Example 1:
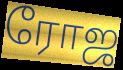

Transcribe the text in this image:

ரோஜ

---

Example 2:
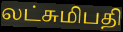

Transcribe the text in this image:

லட்சுமிபதி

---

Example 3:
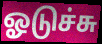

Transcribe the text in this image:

ஓடுச்சு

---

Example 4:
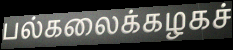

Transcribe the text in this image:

பல்கலைக்கழகச்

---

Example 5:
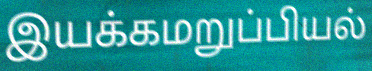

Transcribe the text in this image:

இயக்கமறுப்பியல்